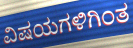
ವಿಷಯಗಳಿಗಿಂತ